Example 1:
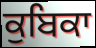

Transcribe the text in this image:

ਕੁਬਿਕਾ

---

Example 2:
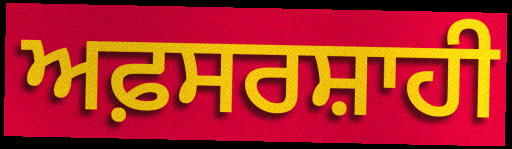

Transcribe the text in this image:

ਅਫ਼ਸਰਸ਼ਾਹੀ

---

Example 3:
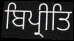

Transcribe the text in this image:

ਬਿਪ੍ਰੀਤਿ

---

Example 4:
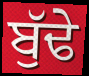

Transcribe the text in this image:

ਬੁੱਢੇ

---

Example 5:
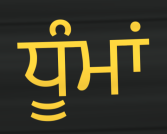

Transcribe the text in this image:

ਧੂੰਮਾਂ